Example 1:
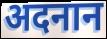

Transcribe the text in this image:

अदनान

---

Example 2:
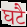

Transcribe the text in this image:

घटै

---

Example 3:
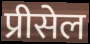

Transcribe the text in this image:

प्रीसेल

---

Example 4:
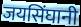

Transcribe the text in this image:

जयसिंघानी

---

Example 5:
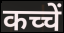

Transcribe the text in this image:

कच्चें